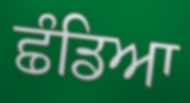
ਛੰਡਿਆ